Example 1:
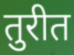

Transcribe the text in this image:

तुरीत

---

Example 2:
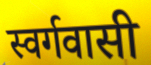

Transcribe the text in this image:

स्वर्गवासी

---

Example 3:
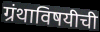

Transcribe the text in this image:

ग्रंथाविषयीची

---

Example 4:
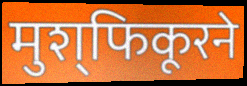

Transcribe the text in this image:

मुश्फिकूरने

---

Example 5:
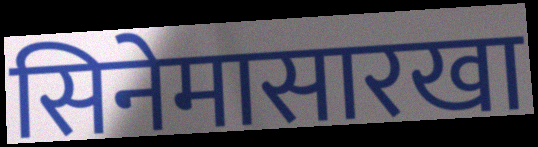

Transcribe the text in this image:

सिनेमासारखा